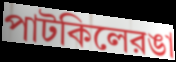
পাটকিলেরঙা